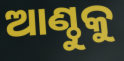
ଆଣ୍ଠୁକୁ